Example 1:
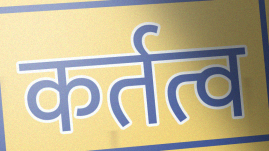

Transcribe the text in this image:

कर्तत्व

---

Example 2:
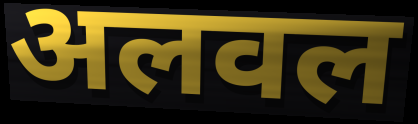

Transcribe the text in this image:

अलवल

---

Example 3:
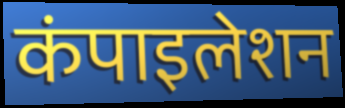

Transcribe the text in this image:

कंपाइलेशन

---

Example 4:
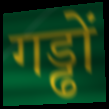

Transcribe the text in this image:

गड्ढों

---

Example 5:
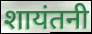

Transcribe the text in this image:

शायंतनी